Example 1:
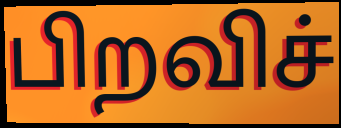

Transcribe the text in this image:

பிறவிச்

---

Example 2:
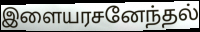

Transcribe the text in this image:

இளையரசனேந்தல்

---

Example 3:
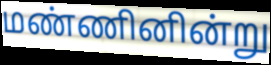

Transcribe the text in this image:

மண்ணினின்று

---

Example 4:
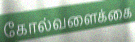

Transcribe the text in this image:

கோல்வளைக்கை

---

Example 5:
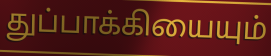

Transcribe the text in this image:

துப்பாக்கியையும்